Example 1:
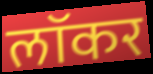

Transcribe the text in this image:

लॉकर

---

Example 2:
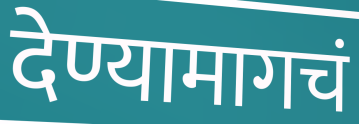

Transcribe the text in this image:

देण्यामागचं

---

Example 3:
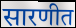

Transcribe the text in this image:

सारणीत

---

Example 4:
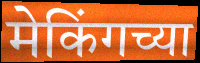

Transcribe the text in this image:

मेकिंगच्या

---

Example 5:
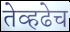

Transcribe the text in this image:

तेव्हढेच